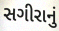
સગીરાનું